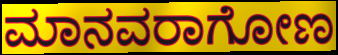
ಮಾನವರಾಗೋಣ